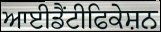
ਆਈਡੈਂਟੀਫਿਕੇਸ਼ਨ